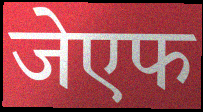
जेएफ